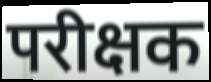
परीक्षक